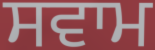
ਸਵਾਮ